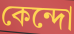
কেন্দো